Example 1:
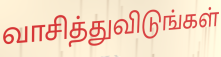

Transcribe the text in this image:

வாசித்துவிடுங்கள்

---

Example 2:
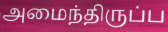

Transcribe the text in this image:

அமைந்திருப்ப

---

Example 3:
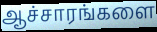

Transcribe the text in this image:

ஆச்சாரங்களை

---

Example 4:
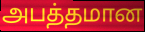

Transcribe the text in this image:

அபத்தமான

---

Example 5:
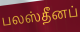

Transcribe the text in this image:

பலஸ்தீனப்